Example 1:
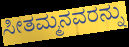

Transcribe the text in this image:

ಸೀತಮ್ಮನವರನ್ನು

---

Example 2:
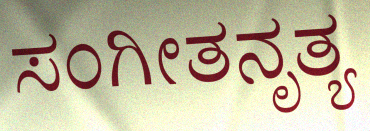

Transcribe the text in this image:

ಸಂಗೀತನೃತ್ಯ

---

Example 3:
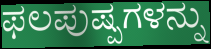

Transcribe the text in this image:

ಫಲಪುಷ್ಪಗಳನ್ನು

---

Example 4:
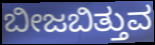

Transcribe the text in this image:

ಬೀಜಬಿತ್ತುವ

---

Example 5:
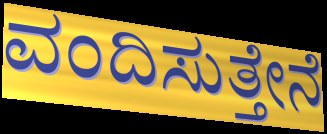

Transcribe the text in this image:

ವಂದಿಸುತ್ತೇನೆ